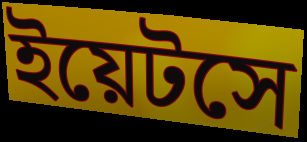
ইয়েটসে